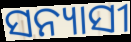
ସନ୍ୟାସୀ